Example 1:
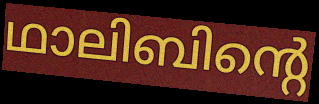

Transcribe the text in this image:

ഥാലിബിന്റെ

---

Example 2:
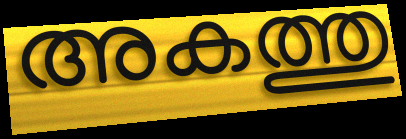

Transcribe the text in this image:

അകത്തു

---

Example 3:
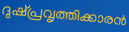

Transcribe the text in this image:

ദുഷ്പ്രവൃത്തിക്കാരൻ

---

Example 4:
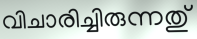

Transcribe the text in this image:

വിചാരിച്ചിരുന്നതു്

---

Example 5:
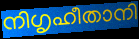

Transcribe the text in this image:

നിഗൃഹീതാനി